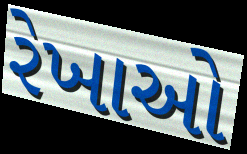
રેખાઓ